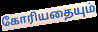
கோரியதையும்